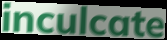
inculcate